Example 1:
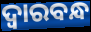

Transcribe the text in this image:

ଦ୍ବାରବନ୍ଧ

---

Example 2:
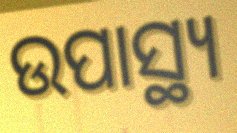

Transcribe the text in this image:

ଉପାସ୍ଥ୍ୟ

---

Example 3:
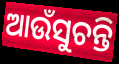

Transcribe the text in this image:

ଆଉଁସୁଚନ୍ତି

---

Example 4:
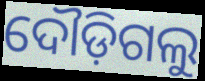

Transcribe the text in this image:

ଦୌଡ଼ିଗଲୁ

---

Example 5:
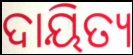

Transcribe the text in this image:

ଦାୟିତ୍ୟ